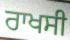
ਰਾਖਸੀ